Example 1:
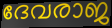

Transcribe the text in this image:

ദേവരാജ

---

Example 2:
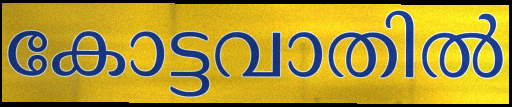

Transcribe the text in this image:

കോട്ടവാതിൽ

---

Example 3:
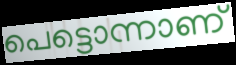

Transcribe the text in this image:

പെട്ടൊന്നാണ്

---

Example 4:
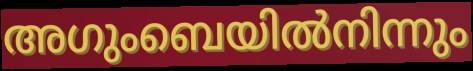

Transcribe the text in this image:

അഗുംബെയിൽനിന്നും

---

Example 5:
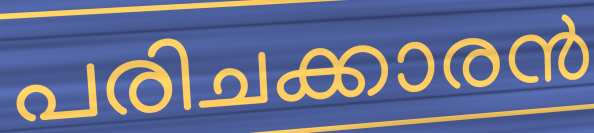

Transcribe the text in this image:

പരിചക്കാരൻ